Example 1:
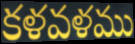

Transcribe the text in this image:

కళవళము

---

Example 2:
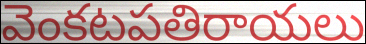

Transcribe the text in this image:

వెంకటపతిరాయలు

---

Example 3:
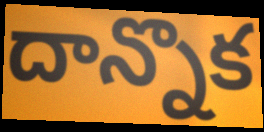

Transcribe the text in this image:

దాన్నొక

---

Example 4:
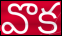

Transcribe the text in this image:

వొక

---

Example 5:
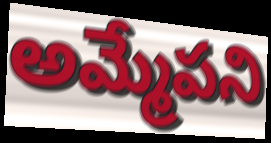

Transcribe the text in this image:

అమ్మేపని